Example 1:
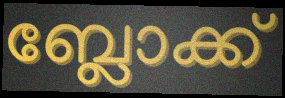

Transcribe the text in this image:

ബ്ലോക്ക്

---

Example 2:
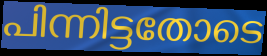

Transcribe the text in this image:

പിന്നിട്ടതോടെ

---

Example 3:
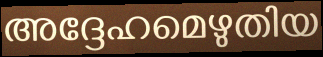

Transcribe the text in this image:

അദ്ദേഹമെഴുതിയ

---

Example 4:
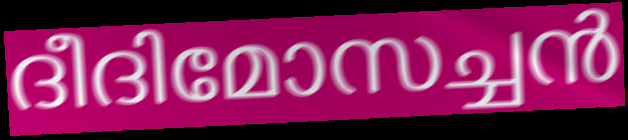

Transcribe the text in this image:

ദീദിമോസച്ചൻ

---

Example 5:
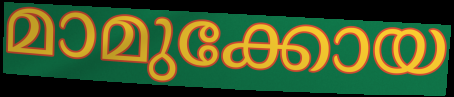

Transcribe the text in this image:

മാമുക്കോയ